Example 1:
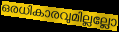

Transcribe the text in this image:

ഒരധികാരവുമില്ലല്ലോ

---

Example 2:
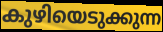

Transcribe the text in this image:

കുഴിയെടുക്കുന്ന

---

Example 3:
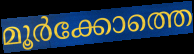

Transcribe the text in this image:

മൂർക്കോത്തെ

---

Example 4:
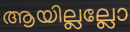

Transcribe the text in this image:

ആയില്ലല്ലോ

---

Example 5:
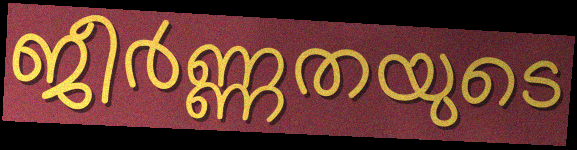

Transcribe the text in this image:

ജീർണ്ണതയുടെ